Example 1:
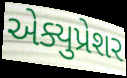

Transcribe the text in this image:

એક્યુપ્રેશર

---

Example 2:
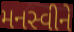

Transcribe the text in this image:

મનસ્વીને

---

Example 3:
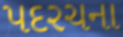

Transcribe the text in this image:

પદરચના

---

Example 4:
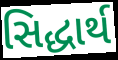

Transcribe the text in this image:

સિદ્ધાર્થ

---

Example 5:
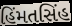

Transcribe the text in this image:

હિંમતસિંહ